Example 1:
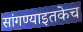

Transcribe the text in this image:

सांगण्याइतकेच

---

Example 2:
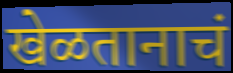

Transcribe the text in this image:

खेळतानाचं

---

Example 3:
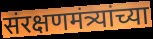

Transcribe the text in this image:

संरक्षणमंत्र्यांच्या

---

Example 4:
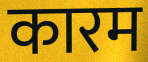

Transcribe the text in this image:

कारम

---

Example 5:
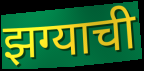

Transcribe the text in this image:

झग्याची